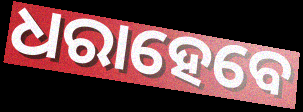
ଧରାହେବେ